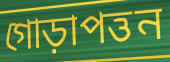
গোড়াপত্তন